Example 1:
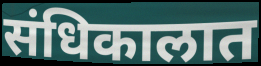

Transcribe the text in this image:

संधिकालात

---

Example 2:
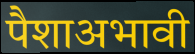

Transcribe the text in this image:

पैशाअभावी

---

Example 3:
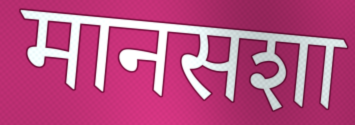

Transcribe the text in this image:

मानसशा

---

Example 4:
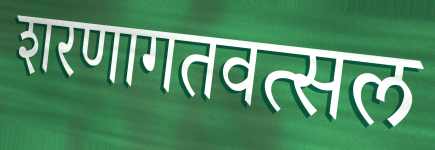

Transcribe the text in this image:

शरणागतवत्सल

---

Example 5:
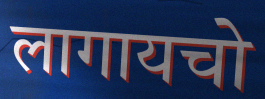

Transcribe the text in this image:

लागायचो